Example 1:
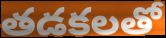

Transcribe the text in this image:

తడకలతో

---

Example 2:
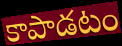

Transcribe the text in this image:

కాపాడటం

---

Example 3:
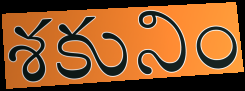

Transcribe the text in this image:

శకునిం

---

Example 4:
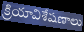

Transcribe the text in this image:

క్రియావిశేషణాలు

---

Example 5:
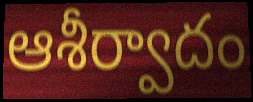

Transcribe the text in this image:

ఆశీర్వాదం